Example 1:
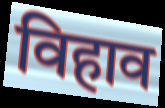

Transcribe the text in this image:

विहाव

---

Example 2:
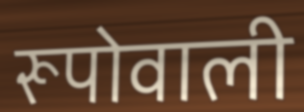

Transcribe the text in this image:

रूपोवाली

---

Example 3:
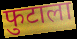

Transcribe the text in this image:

फुटाला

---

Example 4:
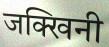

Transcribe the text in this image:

जक्खिनी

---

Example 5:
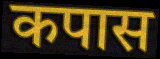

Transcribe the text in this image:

कपास